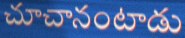
చూచానంటాడు